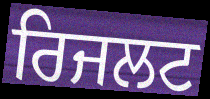
ਰਿਜਲਟ